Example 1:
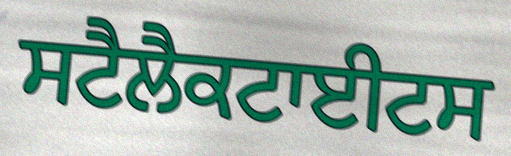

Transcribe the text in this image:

ਸਟੈਲੈਕਟਾਈਟਸ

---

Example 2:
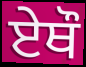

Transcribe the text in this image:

ਏਥੌ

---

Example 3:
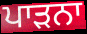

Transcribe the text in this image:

ਪਾੜਨਾ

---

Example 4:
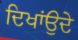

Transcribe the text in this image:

ਦਿਖਾਂਉਦੇ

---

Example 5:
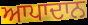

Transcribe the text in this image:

ਆਪਾਦਾਨ